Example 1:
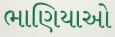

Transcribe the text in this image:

ભાણિયાઓ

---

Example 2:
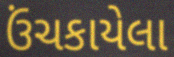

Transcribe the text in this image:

ઉંચકાયેલા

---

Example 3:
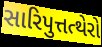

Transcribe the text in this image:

સારિપુત્તત્થેરો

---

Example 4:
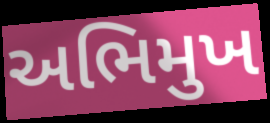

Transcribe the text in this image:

અભિમુખ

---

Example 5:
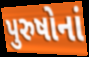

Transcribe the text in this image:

પુરુષોનાં